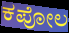
ಕಪೋಲ